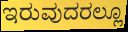
ಇರುವುದರಲ್ಲೂ